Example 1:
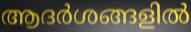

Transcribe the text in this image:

ആദർശങ്ങളിൽ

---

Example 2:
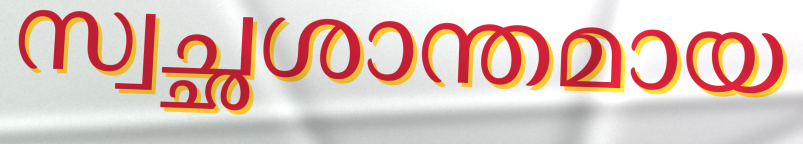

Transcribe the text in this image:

സ്വച്ഛശാന്തമായ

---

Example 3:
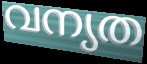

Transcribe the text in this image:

വന്യത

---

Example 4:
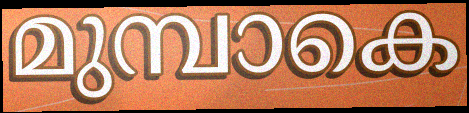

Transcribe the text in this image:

മുമ്പാകെ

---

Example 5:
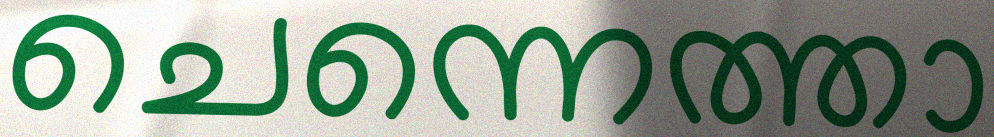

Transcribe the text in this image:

ചെന്നെത്താ